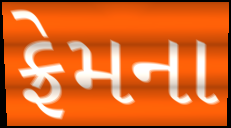
ફ્રેમના